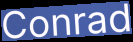
Conrad